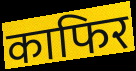
काफिर